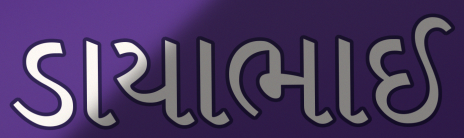
ડાયાભાઈ